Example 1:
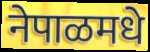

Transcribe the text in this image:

नेपाळमधे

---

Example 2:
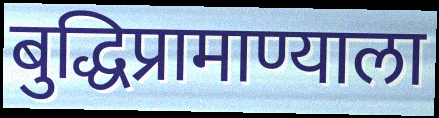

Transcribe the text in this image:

बुद्धिप्रामाण्याला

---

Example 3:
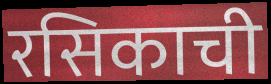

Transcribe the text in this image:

रसिकाची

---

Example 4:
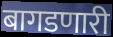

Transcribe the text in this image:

बागडणारी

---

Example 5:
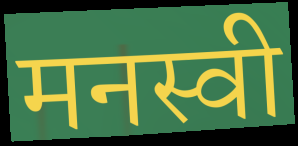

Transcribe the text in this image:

मनस्वी